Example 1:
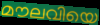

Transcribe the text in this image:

മൗലവിയെ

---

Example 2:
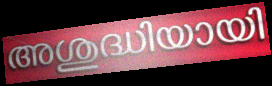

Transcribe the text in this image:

അശുദ്ധിയായി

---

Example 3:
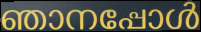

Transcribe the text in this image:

ഞാനപ്പോൾ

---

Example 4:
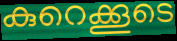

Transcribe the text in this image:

കുറെക്കൂടെ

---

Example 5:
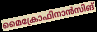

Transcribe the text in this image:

മൈക്രോഫിനാൻസിങ്